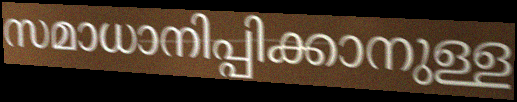
സമാധാനിപ്പിക്കാനുള്ള